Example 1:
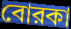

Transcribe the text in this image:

বোরকা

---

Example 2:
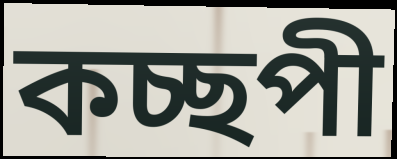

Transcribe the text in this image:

কচ্ছপী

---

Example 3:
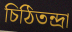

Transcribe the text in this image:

চিঠিতন্দ্রা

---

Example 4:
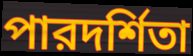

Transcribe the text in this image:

পারদর্শিতা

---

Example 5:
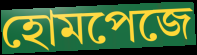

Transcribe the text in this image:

হোমপেজে